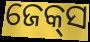
ଜେକ୍‍ସ